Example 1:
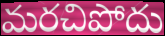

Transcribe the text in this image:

మరచిపోదు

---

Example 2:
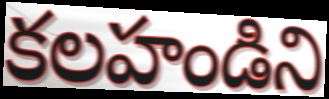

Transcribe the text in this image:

కలహండిని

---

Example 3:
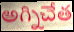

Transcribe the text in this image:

అగ్నిచేత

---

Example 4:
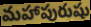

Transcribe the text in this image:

మహాపురుషు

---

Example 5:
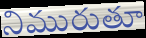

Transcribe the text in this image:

నిమురుతూ